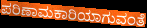
ಪರಿಣಾಮಕಾರಿಯಾಗುವಂತೆ